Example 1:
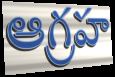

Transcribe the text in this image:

ఆగ్రహ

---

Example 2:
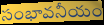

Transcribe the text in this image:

సంభావనీయం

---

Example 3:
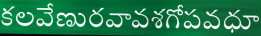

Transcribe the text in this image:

కలవేణురవావశగోపవధూ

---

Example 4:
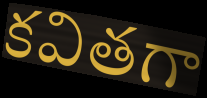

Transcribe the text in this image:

కవితగా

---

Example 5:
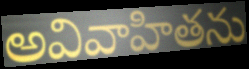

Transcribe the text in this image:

అవివాహితను